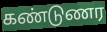
கண்டுணர